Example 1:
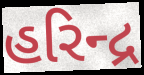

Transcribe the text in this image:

હરિન્દ્ર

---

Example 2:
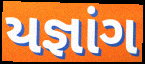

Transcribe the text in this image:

યજ્ઞાંગ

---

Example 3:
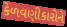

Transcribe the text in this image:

કેળવણીકારોને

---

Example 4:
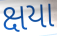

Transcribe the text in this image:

ક્ષયા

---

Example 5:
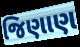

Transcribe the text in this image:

જિણાણ